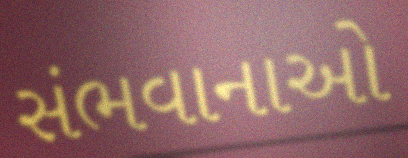
સંભવાનાઓ